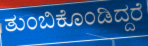
ತುಂಬಿಕೊಂಡಿದ್ದರೆ